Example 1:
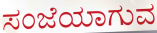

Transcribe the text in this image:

ಸಂಜೆಯಾಗುವ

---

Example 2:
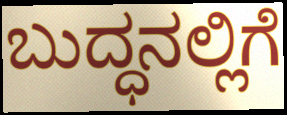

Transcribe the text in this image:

ಬುದ್ಧನಲ್ಲಿಗೆ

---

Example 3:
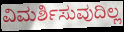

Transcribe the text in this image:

ವಿಮರ್ಶಿಸುವುದಿಲ್ಲ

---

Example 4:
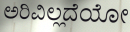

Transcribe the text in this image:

ಅರಿವಿಲ್ಲದೆಯೋ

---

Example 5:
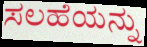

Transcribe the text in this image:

ಸಲಹೆಯನ್ನು